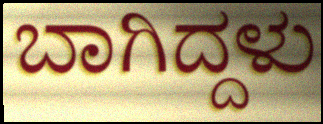
ಬಾಗಿದ್ದಳು